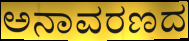
ಅನಾವರಣದ